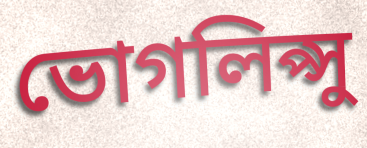
ভোগলিপ্সু